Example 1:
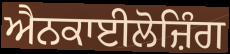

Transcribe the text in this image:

ਐਨਕਾਈਲੋਜ਼ਿੰਗ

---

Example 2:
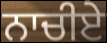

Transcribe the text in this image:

ਨਾਚੀਏ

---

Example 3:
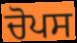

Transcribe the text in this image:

ਚੋਪਸ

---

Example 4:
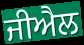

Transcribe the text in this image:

ਜੀਐਲ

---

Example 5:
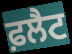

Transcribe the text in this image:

ਫ਼ਲੈਟ